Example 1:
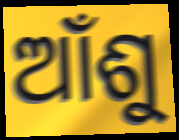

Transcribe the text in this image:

ଆଁଶୁ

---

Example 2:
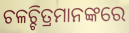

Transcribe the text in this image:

ଚଳଚ୍ଚିତ୍ରମାନଙ୍କରେ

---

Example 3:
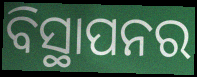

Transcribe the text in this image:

ବିସ୍ଥାପନର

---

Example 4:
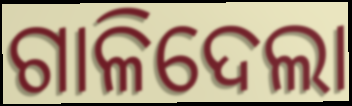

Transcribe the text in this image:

ଗାଳିଦେଲା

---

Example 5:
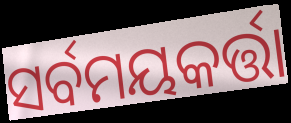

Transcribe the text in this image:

ସର୍ବମୟକର୍ତ୍ତା